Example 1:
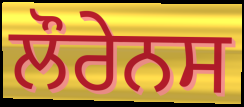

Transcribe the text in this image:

ਲੌਰੇਨਸ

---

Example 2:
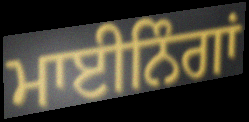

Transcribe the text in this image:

ਮਾਈਨਿੰਗਾਂ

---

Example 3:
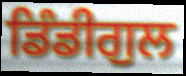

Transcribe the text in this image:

ਡਿੰਡੀਗੁਲ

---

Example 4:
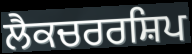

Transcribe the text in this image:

ਲੈਕਚਰਰਸ਼ਿਪ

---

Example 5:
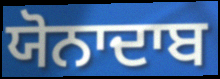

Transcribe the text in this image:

ਯੋਨਾਦਾਬ